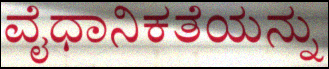
ವೈಧಾನಿಕತೆಯನ್ನು